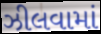
ઝીલવામાં